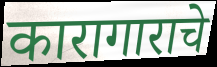
कारागाराचे